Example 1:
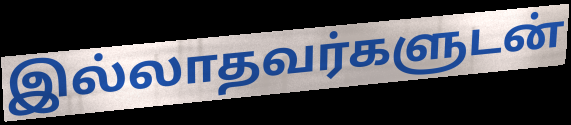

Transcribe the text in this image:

இல்லாதவர்களுடன்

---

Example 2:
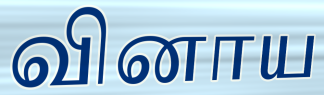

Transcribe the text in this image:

வினாய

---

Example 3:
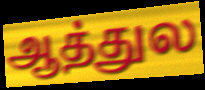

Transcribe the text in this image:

ஆத்துல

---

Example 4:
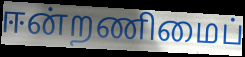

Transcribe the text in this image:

ஈன்றணிமைப்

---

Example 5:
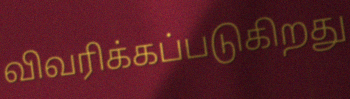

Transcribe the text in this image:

விவரிக்கப்படுகிறது